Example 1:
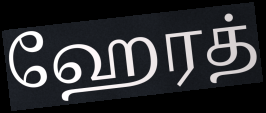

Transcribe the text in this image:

ஹேரத்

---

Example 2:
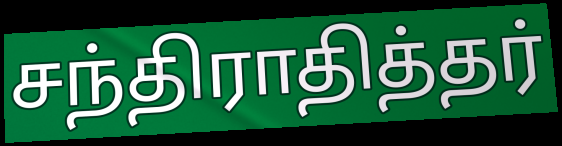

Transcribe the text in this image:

சந்திராதித்தர்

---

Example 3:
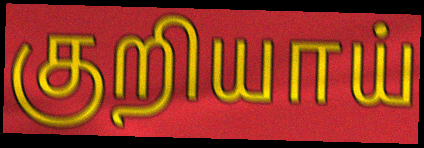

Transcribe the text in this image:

குறியாய்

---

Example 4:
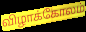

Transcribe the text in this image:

விழாக்கோலம்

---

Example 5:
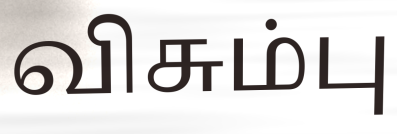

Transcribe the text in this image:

விசும்பு